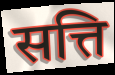
सत्ति